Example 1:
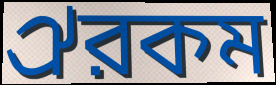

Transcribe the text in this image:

ঐরকম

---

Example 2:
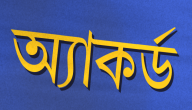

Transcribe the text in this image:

অ্যাকর্ড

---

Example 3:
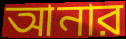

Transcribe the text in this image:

আনার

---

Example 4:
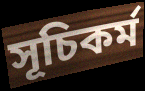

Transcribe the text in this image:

সূচিকর্ম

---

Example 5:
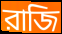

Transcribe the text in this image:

রাজি